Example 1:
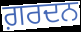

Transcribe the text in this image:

ਗ਼ਰਦਨ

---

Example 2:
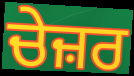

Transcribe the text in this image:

ਚੇਜ਼ਰ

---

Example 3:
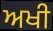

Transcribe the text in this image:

ਅਖੀ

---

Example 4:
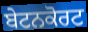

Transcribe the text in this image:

ਬੇਟਨਕੋਰਟ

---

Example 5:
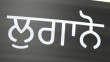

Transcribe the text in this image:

ਲੁਗਾਨੋ